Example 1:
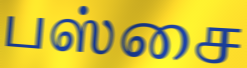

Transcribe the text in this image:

பஸ்சை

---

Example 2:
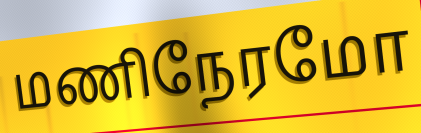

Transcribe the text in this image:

மணிநேரமோ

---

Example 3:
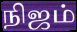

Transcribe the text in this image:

நிஜம்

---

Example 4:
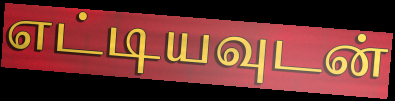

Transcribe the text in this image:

எட்டியவுடன்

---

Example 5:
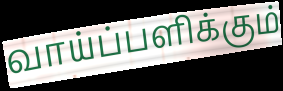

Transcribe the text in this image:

வாய்ப்பளிக்கும்